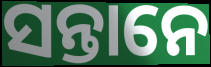
ସନ୍ତାନେ